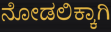
ನೋಡಲಿಕ್ಕಾಗಿ